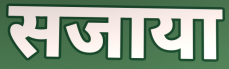
सजाया